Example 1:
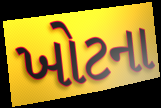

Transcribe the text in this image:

ખોટના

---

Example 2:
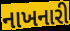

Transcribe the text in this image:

નાખનારી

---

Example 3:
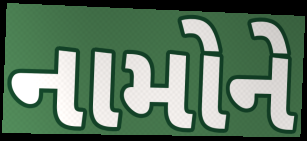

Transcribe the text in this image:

નામોને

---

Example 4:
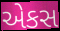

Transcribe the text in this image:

એકસ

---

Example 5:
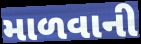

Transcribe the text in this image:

માળવાની